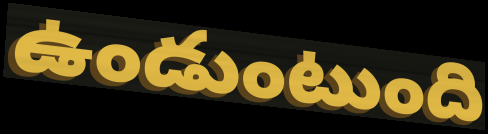
ఉండుంటుంది